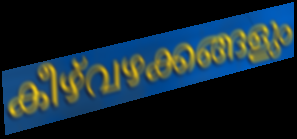
കീഴ്‌വഴക്കങ്ങളും